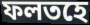
ফলতহে